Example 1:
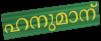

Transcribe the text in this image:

ഹനുമാന്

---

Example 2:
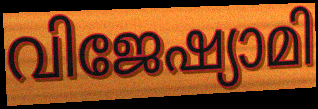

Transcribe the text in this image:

വിജേഷ്യാമി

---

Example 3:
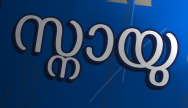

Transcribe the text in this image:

സ്നായു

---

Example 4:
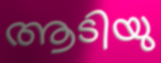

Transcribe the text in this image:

ആടിയു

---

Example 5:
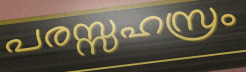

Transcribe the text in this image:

പരസ്സഹസ്രം